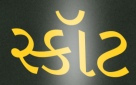
સ્કૉટ